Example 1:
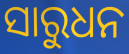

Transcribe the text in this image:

ସାରୁଧନ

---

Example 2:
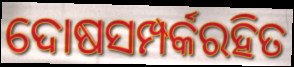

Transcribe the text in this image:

ଦୋଷସମ୍ପର୍କରହିତ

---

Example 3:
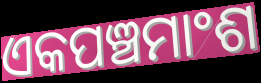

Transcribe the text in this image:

ଏକପଞ୍ଚମାଂଶ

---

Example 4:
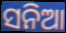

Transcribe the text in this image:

ସନିଆ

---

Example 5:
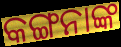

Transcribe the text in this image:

କଙ୍ଗନାଙ୍କ